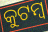
କୁଟମ୍ୱ